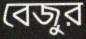
বেজুর